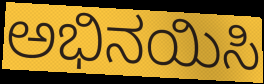
ಅಭಿನಯಿಸಿ